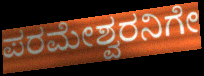
ಪರಮೇಶ್ವರನಿಗೇ